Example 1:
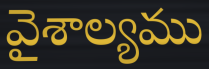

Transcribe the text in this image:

వైశాల్యము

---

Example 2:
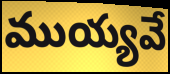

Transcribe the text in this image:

ముయ్యవే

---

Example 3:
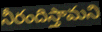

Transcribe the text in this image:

నీరందిస్తామని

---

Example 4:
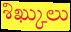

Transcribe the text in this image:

శిఖ్కులు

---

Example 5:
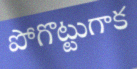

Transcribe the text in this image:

పోగొట్టుగాక